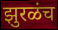
झुरळंच